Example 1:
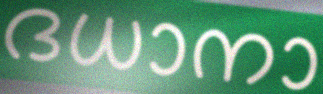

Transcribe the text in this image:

ദധാനാ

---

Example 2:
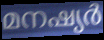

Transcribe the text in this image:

മനഷ്യർ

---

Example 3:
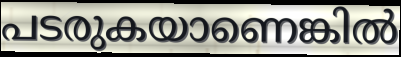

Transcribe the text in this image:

പടരുകയാണെങ്കിൽ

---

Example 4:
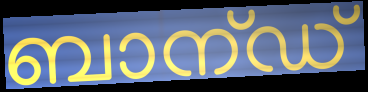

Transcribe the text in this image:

ബാന്ഡ്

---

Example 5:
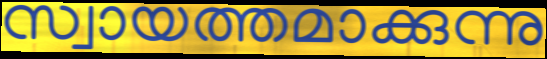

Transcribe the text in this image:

സ്വായത്തമാക്കുന്നു